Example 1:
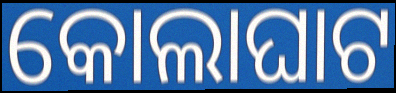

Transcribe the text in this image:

କୋଲାଘାଟ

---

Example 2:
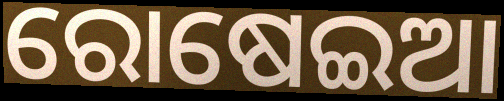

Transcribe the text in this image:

ରୋଷେଇଆ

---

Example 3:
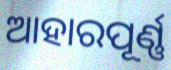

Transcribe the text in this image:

ଆହାରପୂର୍ଣ୍ଣ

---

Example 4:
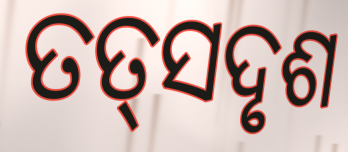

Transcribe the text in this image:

ତତ୍‌ସଦୃଶ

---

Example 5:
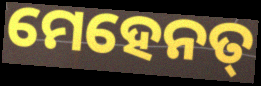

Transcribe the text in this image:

ମେହେନତ୍